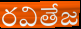
రవితేజ